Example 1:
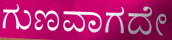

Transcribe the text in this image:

ಗುಣವಾಗದೇ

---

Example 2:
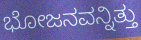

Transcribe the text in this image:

ಭೋಜನವನ್ನಿತ್ತು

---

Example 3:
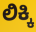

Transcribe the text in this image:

ಲಿಕ್ಕಿ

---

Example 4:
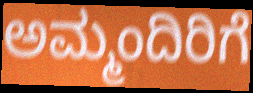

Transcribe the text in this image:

ಅಮ್ಮಂದಿರಿಗೆ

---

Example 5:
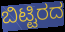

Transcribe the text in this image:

ಬಿಟ್ಟಿರದ